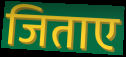
जिताए